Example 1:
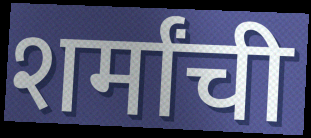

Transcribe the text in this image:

शर्मांची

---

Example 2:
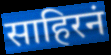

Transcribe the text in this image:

साहिरनं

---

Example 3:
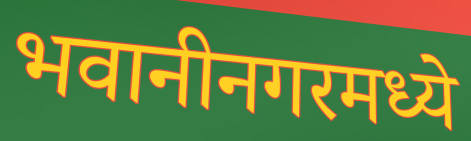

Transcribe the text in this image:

भवानीनगरमध्ये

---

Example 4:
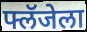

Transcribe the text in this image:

फ्लॅजेला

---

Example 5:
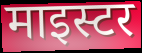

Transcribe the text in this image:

माइस्टर